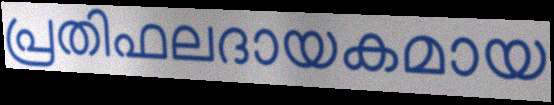
പ്രതിഫലദായകമായ